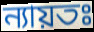
ন্যায়তঃ